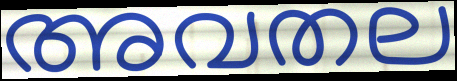
അവതല